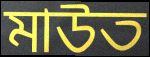
মাউত